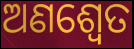
ଅଣଶ୍ୱେତ